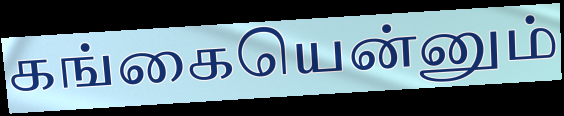
கங்கையென்னும்